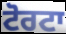
ਟੋਰਟਾ